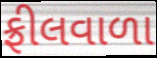
ફ્રીલવાળા